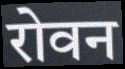
रोवन